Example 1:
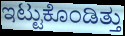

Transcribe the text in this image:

ಇಟ್ಟುಕೊಂಡಿತ್ತು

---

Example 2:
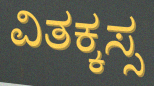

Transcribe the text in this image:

ವಿತಕ್ಕಸ್ಸ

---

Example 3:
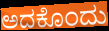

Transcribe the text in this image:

ಅದಕೊಂದು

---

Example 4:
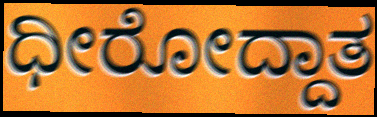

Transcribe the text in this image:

ಧೀರೋದ್ದಾತ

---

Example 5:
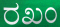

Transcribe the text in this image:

ರಖಂ